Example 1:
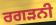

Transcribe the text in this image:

ਰਗੜਨੀ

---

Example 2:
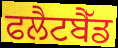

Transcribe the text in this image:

ਫਲੈਟਬੈੱਡ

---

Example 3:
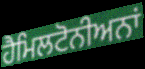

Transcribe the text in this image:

ਹੈਮਿਲਟੋਨੀਅਨਾਂ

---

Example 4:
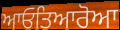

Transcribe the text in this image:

ਆਓਤਿਆਰੋਆ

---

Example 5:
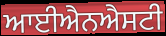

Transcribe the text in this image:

ਆਈਐਨਐਸਟੀ